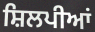
ਸ਼ਿਲਪੀਆਂ